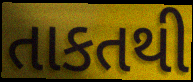
તાકતથી